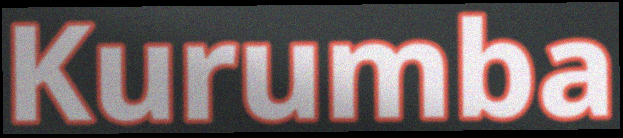
Kurumba